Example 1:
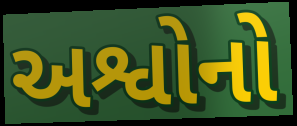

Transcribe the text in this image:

અશ્વોનો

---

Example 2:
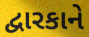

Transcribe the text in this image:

દ્વારકાને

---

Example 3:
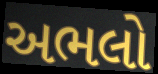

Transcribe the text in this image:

અભલો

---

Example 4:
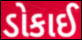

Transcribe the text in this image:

ડોકાઈ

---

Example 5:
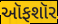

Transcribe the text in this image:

ઑફશૉર